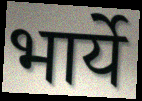
भार्ये